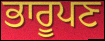
ਭਾਰੂਪਣ